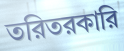
তরিতরকারি